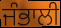
ਜੰਭਾਲੀ